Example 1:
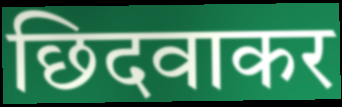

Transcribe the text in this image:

छिदवाकर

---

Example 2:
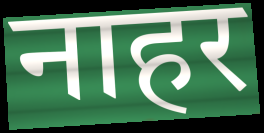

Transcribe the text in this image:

नाहर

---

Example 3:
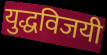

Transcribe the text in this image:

युद्धविजयी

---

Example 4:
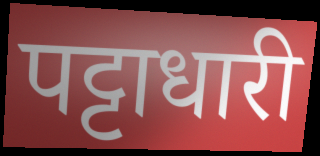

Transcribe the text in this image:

पट्टाधारी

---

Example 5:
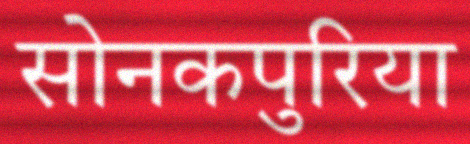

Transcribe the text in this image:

सोनकपुरिया